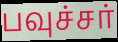
பவுச்சர்